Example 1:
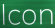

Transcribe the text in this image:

Icon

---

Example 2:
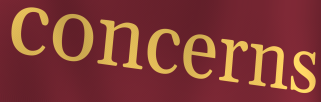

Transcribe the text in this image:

concerns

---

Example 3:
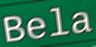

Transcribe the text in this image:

Bela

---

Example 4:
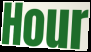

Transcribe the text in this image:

Hour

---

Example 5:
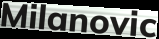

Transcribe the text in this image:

Milanovic